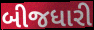
બીજધારી